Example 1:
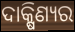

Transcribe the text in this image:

ଦାକ୍ଷିଣ୍ୟର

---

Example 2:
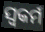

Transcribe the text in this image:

ସ୍ଵକର୍ମ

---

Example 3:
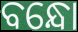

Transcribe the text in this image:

ବନ୍ଧୋ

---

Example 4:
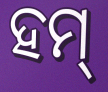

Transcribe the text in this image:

ହମ୍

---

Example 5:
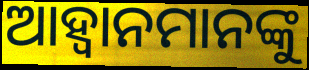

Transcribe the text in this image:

ଆହ୍ୱାନମାନଙ୍କୁ